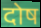
दोष